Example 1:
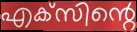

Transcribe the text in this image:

എക്‌സിന്റെ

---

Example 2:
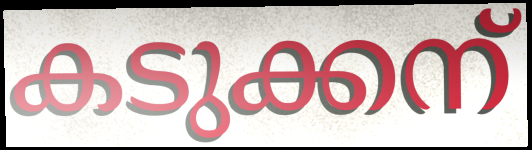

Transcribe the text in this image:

കടുക്കന്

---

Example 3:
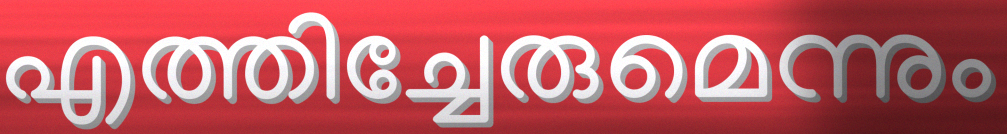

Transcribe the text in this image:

എത്തിച്ചേരുമെന്നും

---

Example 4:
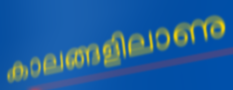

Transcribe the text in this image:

കാലങ്ങളിലാണു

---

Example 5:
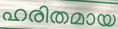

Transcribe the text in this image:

ഹരിതമായ